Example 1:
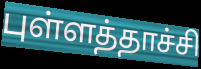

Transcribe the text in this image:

புள்ளத்தாச்சி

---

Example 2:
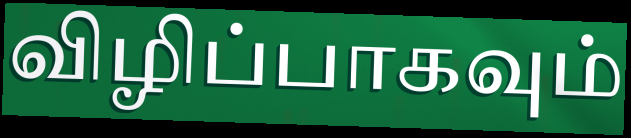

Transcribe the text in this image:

விழிப்பாகவும்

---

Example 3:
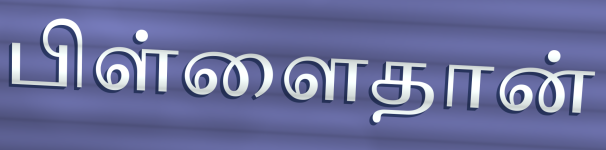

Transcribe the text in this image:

பிள்ளைதான்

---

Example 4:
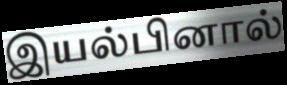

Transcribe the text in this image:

இயல்பினால்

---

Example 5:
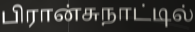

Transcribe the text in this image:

பிரான்சுநாட்டில்